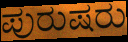
ಪುರುಷರು